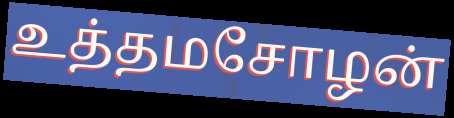
உத்தமசோழன்